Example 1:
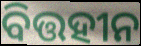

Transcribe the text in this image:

ବିତ୍ତହୀନ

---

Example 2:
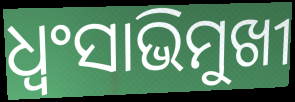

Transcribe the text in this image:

ଧ୍ଵଂସାଭିମୁଖୀ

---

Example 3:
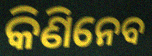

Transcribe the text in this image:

କିଣିନେବ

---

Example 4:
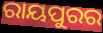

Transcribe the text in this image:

ରାୟପୁରର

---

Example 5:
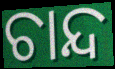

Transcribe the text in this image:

ଚାନ୍ଦ